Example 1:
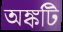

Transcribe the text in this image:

অঙ্কটি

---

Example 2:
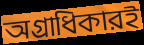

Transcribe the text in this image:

অগ্রাধিকারই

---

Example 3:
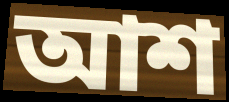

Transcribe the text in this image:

আশ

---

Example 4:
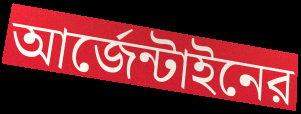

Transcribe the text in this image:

আর্জেন্টাইনের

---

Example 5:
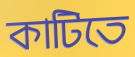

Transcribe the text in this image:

কাটিতে